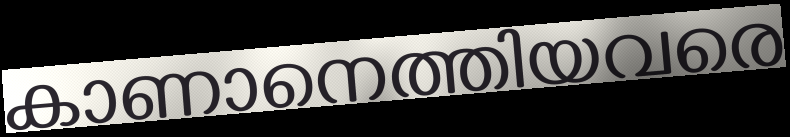
കാണാനെത്തിയവരെ